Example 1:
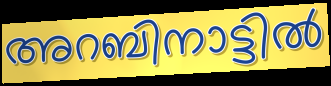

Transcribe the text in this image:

അറബിനാട്ടിൽ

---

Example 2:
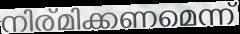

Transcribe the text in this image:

നിര്മിക്കണമെന്ന്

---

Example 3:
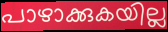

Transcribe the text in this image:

പാഴാക്കുകയില്ല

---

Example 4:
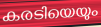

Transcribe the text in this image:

കരടിയെയും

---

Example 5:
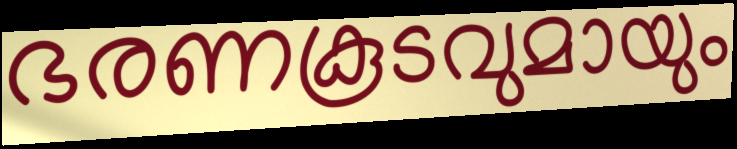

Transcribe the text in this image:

ഭരണകൂടവുമായും